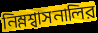
নিম্নশ্বাসনালির